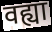
वह्या